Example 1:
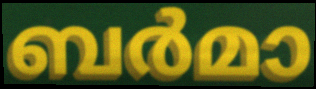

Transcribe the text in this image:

ബർമാ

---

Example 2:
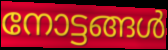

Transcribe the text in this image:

നോട്ടങ്ങൾ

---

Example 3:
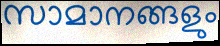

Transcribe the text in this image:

സാമാനങ്ങളും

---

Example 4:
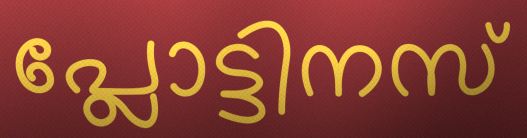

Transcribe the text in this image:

പ്ലോട്ടിനസ്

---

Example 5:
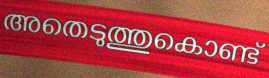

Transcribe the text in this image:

അതെടുത്തുകൊണ്ട്